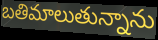
బతిమాలుతున్నాను